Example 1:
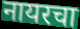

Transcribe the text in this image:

नायरचा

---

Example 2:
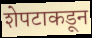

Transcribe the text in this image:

शेपटाकडून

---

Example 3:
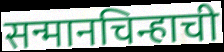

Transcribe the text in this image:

सन्मानचिन्हाची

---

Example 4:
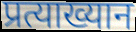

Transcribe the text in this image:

प्रत्याख्यान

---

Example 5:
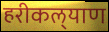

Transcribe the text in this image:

हरीकल्याण